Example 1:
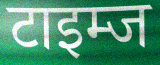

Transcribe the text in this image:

टाइम्ज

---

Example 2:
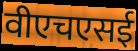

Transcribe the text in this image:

वीएचएसई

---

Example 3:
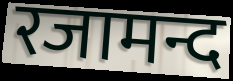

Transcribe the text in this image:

रजामन्द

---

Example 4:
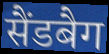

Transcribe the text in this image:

सैंडबैग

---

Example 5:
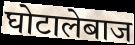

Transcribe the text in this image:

घोटालेबाज